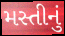
મસ્તીનું